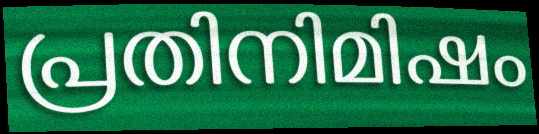
പ്രതിനിമിഷം